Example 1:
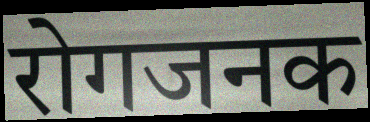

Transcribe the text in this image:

रोगजनक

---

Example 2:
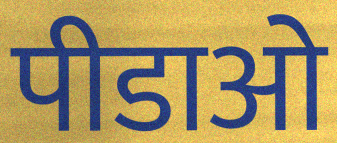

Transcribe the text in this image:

पीडाओ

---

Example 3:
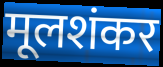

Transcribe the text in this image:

मूलशंकर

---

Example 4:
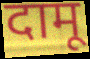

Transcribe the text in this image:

दामू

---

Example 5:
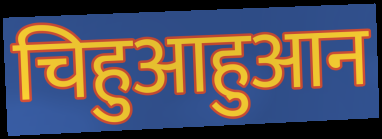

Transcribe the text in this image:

चिहुआहुआन